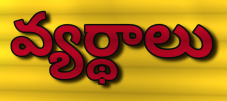
వ్యర్థాలు